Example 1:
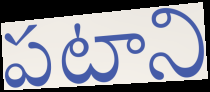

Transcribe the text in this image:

పటాని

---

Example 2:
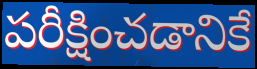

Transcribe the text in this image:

పరీక్షించడానికే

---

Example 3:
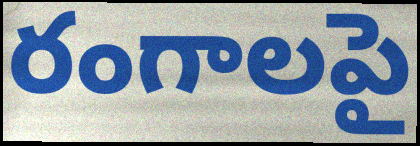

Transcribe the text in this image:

రంగాలపై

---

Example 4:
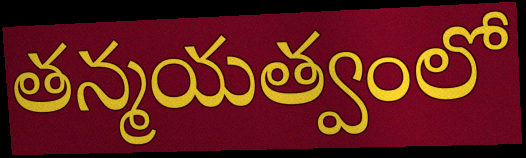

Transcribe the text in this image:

తన్మయత్వంలో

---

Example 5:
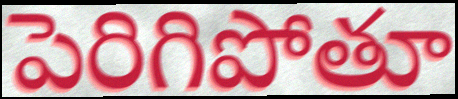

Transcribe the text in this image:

పెరిగిపోతూ